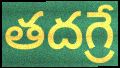
తదగ్రే